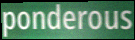
ponderous